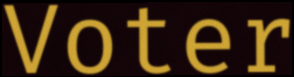
Voter